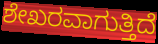
ಶೇಖರವಾಗುತ್ತಿದೆ